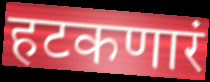
हटकणारं